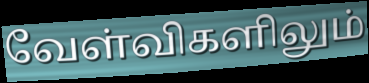
வேள்விகளிலும்